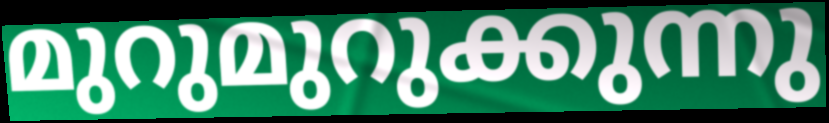
മുറുമുറുക്കുന്നു